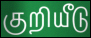
குறியீடு